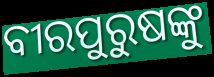
ବୀରପୁରୁଷଙ୍କୁ